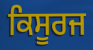
ਕਿਸੂਰਜ